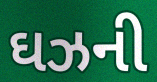
ઘઝની